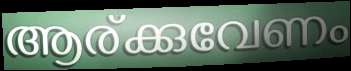
ആര്ക്കുവേണം